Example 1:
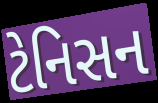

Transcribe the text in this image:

ટેનિસન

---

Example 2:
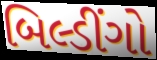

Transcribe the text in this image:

બિલ્ડીંગો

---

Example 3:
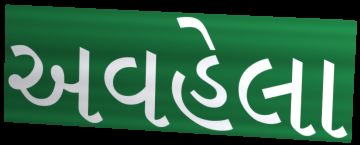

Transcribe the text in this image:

અવહેલા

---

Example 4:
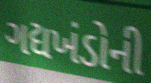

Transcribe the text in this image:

ગદ્યખંડોની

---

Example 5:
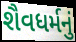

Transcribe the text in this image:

શૈવધર્મનું